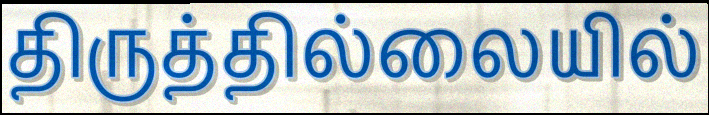
திருத்தில்லையில்